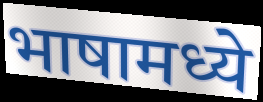
भाषामध्ये